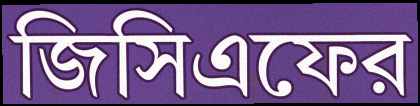
জিসিএফের